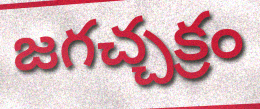
జగచ్చక్రం